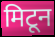
मिटून